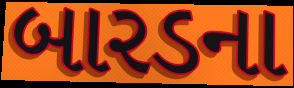
બારડના